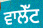
ਵਾਲੇੱਟ